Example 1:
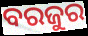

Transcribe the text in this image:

ବରଜୁର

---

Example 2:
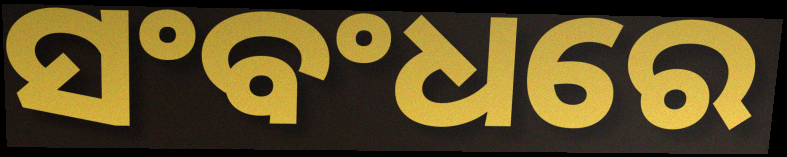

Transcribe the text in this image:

ସଂବଂଧରେ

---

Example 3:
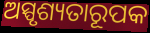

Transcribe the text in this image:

ଅସ୍ପୃଶ୍ୟତାରୂପକ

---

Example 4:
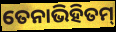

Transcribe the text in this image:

ତେନାଭିହିତମ୍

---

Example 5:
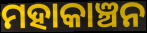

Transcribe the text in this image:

ମହାକାଞ୍ଚନ